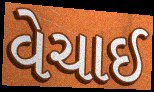
વેચાઈ